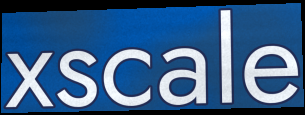
xscale